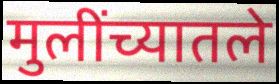
मुलींच्यातले